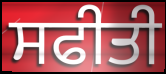
ਸਫੀਤੀ